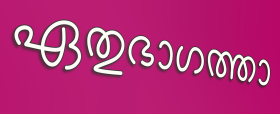
ഏതുഭാഗത്താ